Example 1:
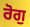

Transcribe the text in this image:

ਰੋਗੁ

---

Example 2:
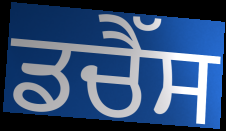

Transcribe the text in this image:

ਡਚੈੱਸ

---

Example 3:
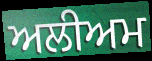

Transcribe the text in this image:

ਅਲੀਅਮ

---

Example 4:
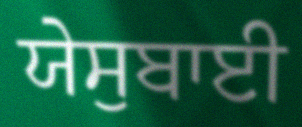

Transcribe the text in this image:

ਯੇਸੁਬਾਈ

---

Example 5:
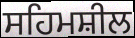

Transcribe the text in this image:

ਸਹਿਮਸ਼ੀਲ